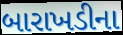
બારાખડીના